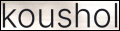
koushol